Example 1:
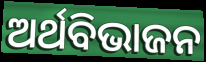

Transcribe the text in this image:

ଅର୍ଥବିଭାଜନ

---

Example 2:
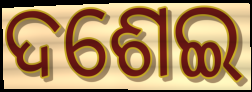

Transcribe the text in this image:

ଦଶେଇ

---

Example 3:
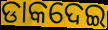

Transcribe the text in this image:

ଡାକଦେଇ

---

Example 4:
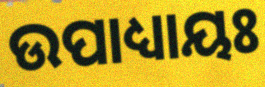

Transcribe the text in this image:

ଉପାଧ୍ୟାୟଃ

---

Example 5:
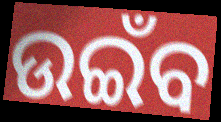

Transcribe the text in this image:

ଉଇଁବ